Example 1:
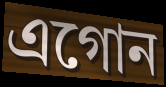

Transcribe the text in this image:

এগোন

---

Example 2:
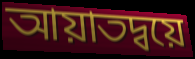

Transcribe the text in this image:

আয়াতদ্বয়ে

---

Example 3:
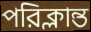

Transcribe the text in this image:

পরিক্লান্ত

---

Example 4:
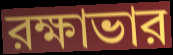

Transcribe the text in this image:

রক্ষাভার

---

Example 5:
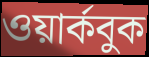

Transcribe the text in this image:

ওয়ার্কবুক